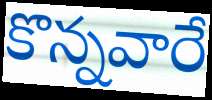
కొన్నవారే